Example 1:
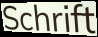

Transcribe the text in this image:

Schrift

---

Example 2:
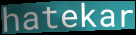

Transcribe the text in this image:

hatekar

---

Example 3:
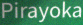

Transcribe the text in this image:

Pirayoka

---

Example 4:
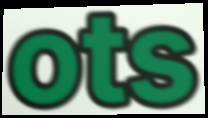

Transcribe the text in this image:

ots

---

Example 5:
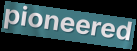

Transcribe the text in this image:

pioneered